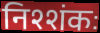
निश्शंकः